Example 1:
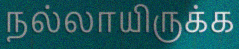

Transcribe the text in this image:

நல்லாயிருக்க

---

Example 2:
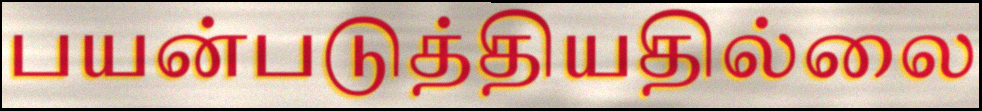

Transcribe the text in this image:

பயன்படுத்தியதில்லை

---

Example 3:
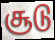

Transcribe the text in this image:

சூடு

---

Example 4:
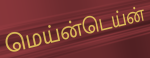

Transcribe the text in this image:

மெய்ன்டெய்ன்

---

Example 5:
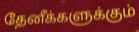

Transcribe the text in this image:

தேனீக்களுக்கும்